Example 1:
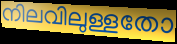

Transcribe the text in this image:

നിലവിലുള്ളതോ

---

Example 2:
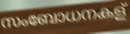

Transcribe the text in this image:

സംബോധനകള്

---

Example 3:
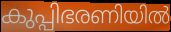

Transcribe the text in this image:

കുപ്പിഭരണിയിൽ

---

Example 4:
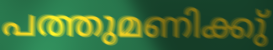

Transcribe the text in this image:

പത്തുമണിക്കു്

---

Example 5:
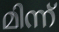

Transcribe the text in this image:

മിന്ന്